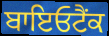
ਬਾਇਓਟੈਂਕ